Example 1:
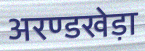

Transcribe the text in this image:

अरण्डखेड़ा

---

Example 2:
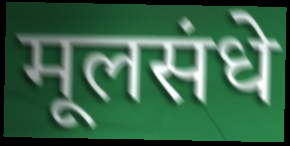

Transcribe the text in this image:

मूलसंधे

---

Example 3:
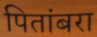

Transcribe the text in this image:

पितांबरा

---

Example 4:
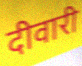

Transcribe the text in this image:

दीवारी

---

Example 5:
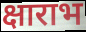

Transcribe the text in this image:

क्षाराभ